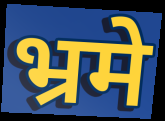
भ्रमे